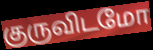
குருவிடமோ